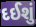
દઈશું